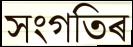
সংগতিৰ